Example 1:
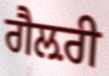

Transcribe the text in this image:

ਗੈਲ਼ਰੀ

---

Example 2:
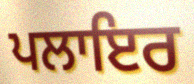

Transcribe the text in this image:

ਪਲਾਇਰ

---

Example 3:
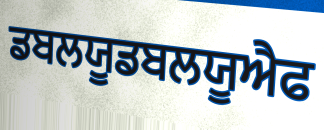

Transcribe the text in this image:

ਡਬਲਯੂਡਬਲਯੂਐਫ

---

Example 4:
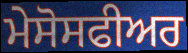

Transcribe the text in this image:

ਮੇਸੋਸਫੀਅਰ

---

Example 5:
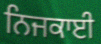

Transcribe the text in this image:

ਨਿਜਕਾਈ